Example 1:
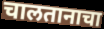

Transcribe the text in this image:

चालतानाचा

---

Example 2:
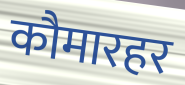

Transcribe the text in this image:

कौमारहर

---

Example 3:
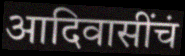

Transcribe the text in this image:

आदिवासींचं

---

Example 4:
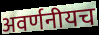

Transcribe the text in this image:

अवर्णनीयच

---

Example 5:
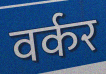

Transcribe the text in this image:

वर्कर